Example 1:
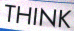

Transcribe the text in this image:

THINK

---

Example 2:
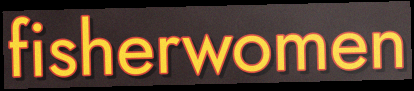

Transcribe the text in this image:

fisherwomen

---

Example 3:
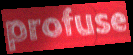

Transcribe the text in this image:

profuse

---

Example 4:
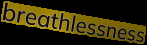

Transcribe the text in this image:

breathlessness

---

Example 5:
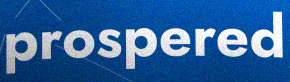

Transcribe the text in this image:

prospered